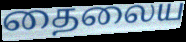
தைலைய